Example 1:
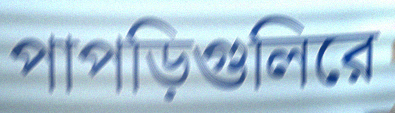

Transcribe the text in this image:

পাপড়িগুলিরে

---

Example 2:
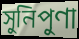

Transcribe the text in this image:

সুনিপুণা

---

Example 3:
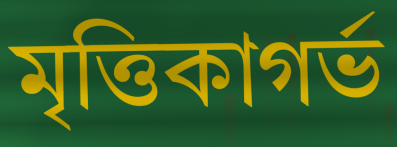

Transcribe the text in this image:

মৃত্তিকাগর্ভ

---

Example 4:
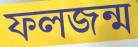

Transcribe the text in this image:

ফলজন্ম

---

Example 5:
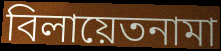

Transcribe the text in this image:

বিলায়েতনামা